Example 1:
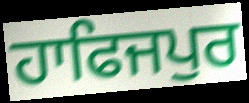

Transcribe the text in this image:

ਹਾਫਿਜਪੁਰ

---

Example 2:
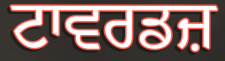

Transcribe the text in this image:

ਟਾਵਰਡਜ਼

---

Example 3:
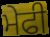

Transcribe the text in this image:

ਮੇਫੀ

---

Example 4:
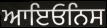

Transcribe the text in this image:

ਆਇਓਨਿਸ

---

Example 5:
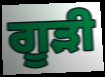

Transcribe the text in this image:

ਗੂੜੀ